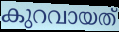
കുറവായത്